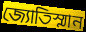
জ্যোতিস্মান